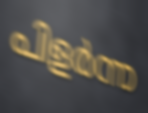
പിളർന്ന